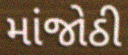
માંજોઠી